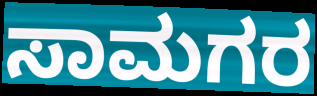
ಸಾಮಗರ